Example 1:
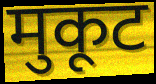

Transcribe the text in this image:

मुकूट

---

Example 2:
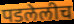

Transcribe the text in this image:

पडलेलीच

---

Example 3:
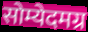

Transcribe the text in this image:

सोम्येदमग्र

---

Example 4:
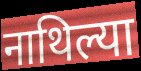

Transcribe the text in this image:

नाथिल्या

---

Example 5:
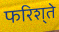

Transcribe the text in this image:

फरिश्ते